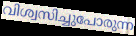
വിശ്വസിച്ചുപോരുന്ന